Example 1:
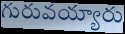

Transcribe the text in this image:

గురువయ్యారు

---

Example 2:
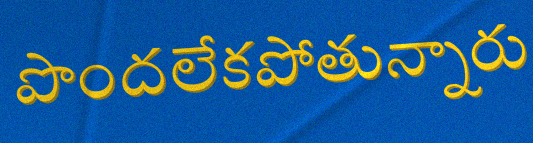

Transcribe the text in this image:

పొందలేకపోతున్నారు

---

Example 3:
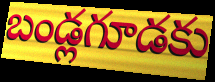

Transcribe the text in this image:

బండ్లగూడకు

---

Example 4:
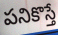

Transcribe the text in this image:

పనికొస్తే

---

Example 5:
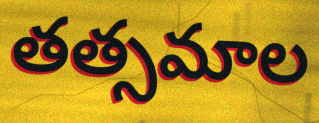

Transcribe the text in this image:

తత్సమాల